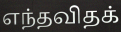
எந்தவிதக்